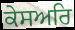
ਕੇਸਅਰਿ